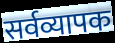
सर्वव्यापक